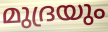
മുദ്രയും